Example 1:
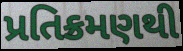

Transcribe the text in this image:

પ્રતિક્રમણથી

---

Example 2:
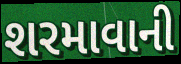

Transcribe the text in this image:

શરમાવાની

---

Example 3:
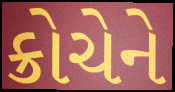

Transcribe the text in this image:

ક્રોચેને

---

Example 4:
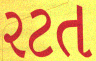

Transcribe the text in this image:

રટત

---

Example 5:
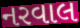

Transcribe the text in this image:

નરવાલ